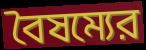
বৈষম্যের